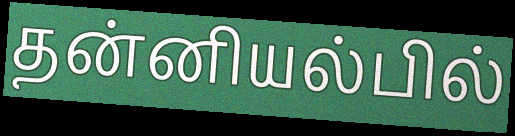
தன்னியல்பில்